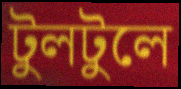
টুলটুলে